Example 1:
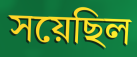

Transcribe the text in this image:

সয়েছিল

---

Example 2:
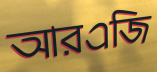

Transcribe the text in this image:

আরএজি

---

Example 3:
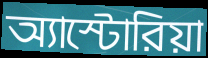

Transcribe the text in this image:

অ্যাস্টোরিয়া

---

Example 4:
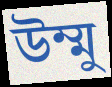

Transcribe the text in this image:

উম্মু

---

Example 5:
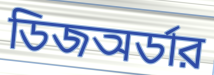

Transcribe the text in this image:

ডিজঅর্ডার